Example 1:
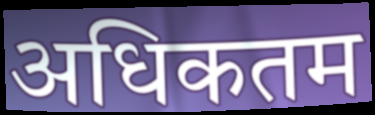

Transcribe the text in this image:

अधिकतम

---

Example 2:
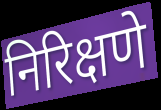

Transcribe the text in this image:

निरिक्षणे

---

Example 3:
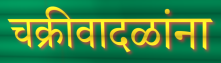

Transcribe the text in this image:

चक्रीवादळांना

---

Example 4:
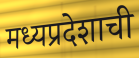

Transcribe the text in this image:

मध्यप्रदेशाची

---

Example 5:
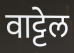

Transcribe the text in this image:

वाट्टेल